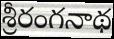
శ్రీరంగనాథ